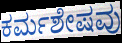
ಕರ್ಮಶೇಷವು